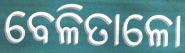
ବେଳିତାଳୋ